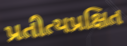
પ્રતીત્યપ્રક્ષિત